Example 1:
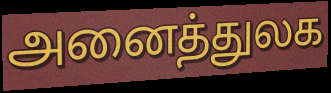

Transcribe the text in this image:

அனைத்துலக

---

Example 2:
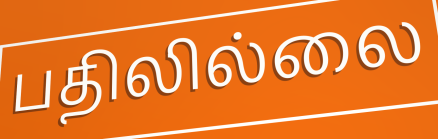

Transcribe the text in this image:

பதிலில்லை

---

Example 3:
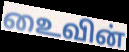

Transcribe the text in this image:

உைவின்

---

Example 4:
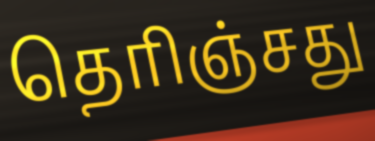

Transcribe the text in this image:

தெரிஞ்சது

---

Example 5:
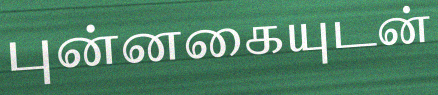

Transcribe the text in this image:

புன்னகையுடன்